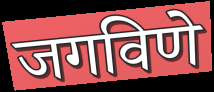
जगविणे